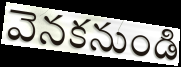
వెనకనుండి